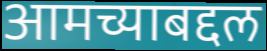
आमच्याबद्दल